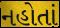
નહોતાં